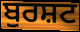
ਬੁਰਸ਼ਟ